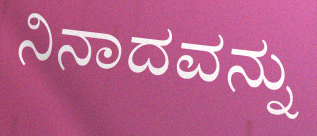
ನಿನಾದವನ್ನು